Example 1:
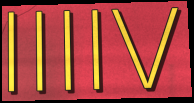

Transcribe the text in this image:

IIIIV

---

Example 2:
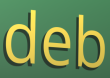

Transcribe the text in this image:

deb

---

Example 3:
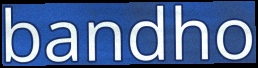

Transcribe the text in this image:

bandho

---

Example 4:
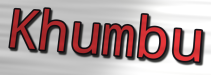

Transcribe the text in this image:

Khumbu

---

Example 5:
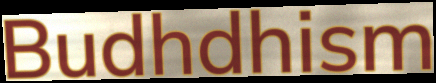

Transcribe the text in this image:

Budhdhism